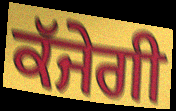
ਕੱਜੇਗੀ